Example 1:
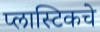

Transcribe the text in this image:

प्लास्टिकचे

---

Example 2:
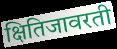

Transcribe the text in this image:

क्षितिजावरती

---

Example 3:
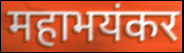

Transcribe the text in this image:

महाभयंकर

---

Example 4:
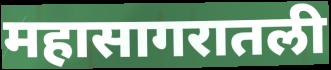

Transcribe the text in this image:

महासागरातली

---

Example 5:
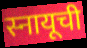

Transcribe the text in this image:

स्नायूची